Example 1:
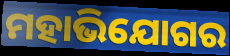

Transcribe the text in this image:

ମହାଭିଯୋଗର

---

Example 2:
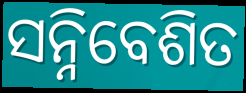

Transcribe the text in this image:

ସନ୍ନିବେଶିତ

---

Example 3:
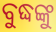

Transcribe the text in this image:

ବୁଦ୍ଧଙ୍କୁ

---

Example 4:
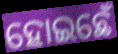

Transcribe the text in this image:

ହୋଇଛେଁ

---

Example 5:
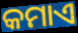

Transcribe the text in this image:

କମାଏ